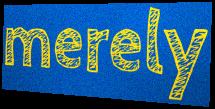
merely